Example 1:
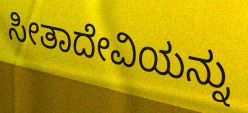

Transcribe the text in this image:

ಸೀತಾದೇವಿಯನ್ನು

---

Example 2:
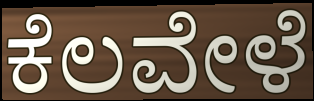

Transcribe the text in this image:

ಕೆಲವೇಳೆ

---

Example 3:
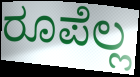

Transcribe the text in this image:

ರೂಪೆಲ್ಲ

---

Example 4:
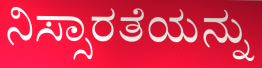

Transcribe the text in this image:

ನಿಸ್ಸಾರತೆಯನ್ನು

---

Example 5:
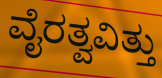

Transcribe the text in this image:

ವೈರತ್ವವಿತ್ತು